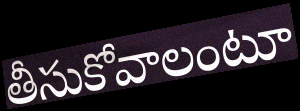
తీసుకోవాలంటూ